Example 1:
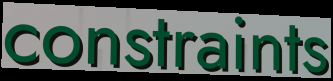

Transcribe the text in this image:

constraints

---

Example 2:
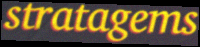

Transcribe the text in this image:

stratagems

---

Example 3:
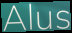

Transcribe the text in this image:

Alus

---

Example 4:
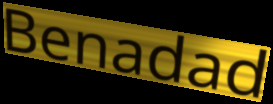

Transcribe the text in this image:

Benadad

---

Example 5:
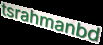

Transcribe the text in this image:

tsrahmanbd